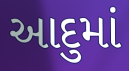
આદુમાં